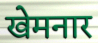
खेमनार